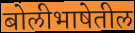
बोलीभाषेतील